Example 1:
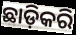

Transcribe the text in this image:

ଛାଡ଼ିକରି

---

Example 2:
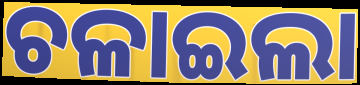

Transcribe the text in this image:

ଚଳାଇଲା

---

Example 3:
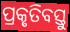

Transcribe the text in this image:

ପ୍ରକୃତିବସ୍ତୁ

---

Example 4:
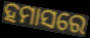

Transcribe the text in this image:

ହମାସରେ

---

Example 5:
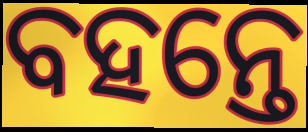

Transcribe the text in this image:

ବହନ୍ତେ